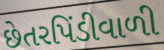
છેતરપિંડીવાળી